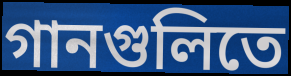
গানগুলিতে